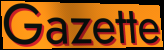
Gazette